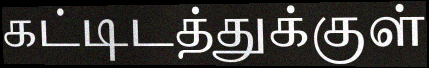
கட்டிடத்துக்குள்